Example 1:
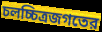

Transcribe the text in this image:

চলচ্চিত্রজগতের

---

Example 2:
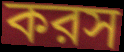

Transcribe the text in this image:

করস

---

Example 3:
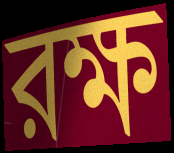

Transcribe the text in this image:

রক্ষ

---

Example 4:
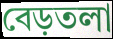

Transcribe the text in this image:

বেড়তলা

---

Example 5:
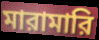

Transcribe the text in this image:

মারামারি